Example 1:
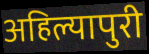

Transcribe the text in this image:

अहिल्यापुरी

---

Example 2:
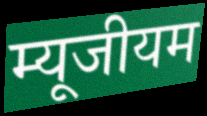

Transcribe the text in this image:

म्यूजीयम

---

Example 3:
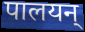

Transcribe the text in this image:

पालयन्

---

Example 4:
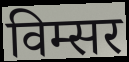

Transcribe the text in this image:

विम्सर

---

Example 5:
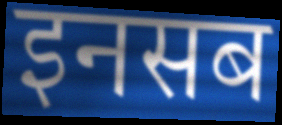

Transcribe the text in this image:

इनसब